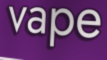
vape